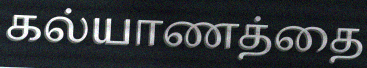
கல்யாணத்தை